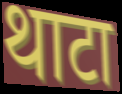
थाटा